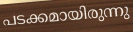
പടക്കമായിരുന്നു